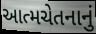
આત્મચેતનાનું